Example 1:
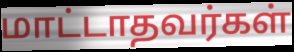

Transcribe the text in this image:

மாட்டாதவர்கள்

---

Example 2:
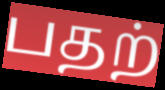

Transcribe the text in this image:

பதற்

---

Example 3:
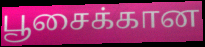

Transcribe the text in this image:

பூசைக்கான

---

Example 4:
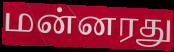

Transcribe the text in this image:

மன்னரது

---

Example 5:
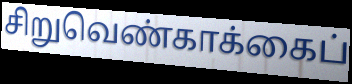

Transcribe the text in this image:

சிறுவெண்காக்கைப்